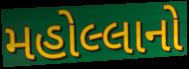
મહોલ્લાનો